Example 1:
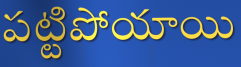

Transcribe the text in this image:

పట్టిపోయాయి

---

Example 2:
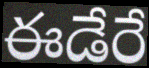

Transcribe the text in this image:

ఈడేరే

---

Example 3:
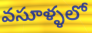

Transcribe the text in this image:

వసూళ్ళలో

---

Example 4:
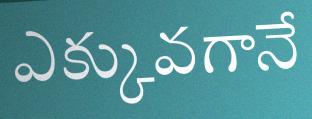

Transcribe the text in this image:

ఎక్కువగానే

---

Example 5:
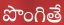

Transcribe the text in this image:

పొంగితే